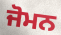
ਜੋਮਨ